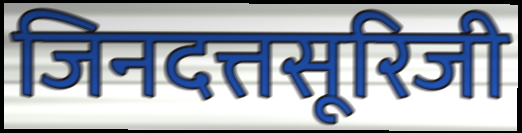
जिनदत्तसूरिजी